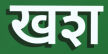
खश